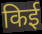
किई